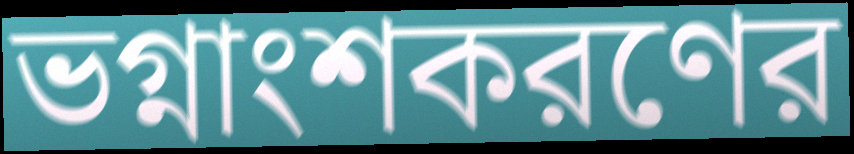
ভগ্নাংশকরণের